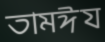
তামঈয